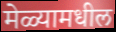
मेळ्यामधील